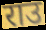
राउ